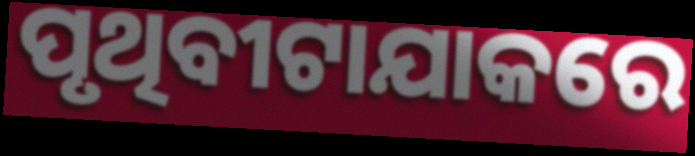
ପୃଥିବୀଟାଯାକରେ